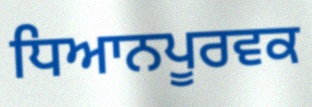
ਧਿਆਨਪੂਰਵਕ